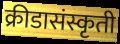
क्रीडासंस्कृती